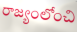
రాజ్యంలోంచి